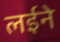
लईने